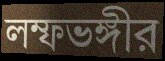
লম্ফভঙ্গীর